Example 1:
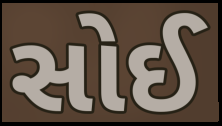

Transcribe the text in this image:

સોઈ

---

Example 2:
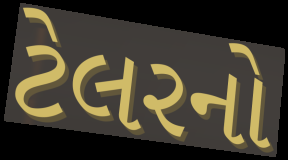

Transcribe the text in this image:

ટેલરનો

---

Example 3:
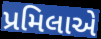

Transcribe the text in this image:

પ્રમિલાએ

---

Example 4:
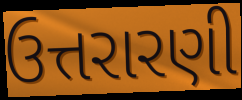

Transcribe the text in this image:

ઉત્તરારણી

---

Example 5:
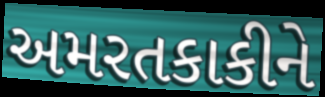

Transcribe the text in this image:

અમરતકાકીને